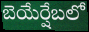
బెయేర్షేబలో